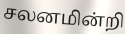
சலனமின்றி